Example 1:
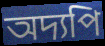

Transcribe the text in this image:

অদ্যপি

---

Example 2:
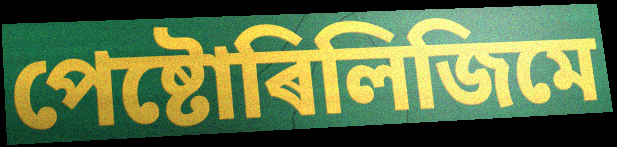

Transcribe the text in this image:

পেষ্টোৰিলিজিমে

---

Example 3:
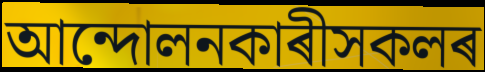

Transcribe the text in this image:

আন্দোলনকাৰীসকলৰ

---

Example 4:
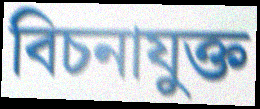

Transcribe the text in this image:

বিচনাযুক্ত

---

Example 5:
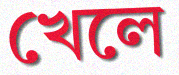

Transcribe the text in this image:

খেলে